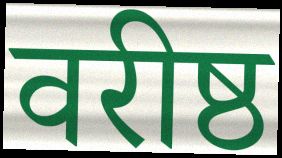
वरीष्ठ